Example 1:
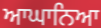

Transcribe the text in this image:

ਆਘਾਨਿਆ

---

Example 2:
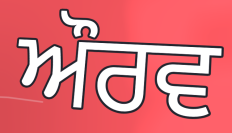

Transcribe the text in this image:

ਔਰਵ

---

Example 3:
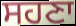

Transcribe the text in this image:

ਸਹਣਾ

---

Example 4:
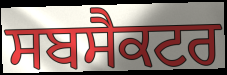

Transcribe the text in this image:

ਸਬਸੈਕਟਰ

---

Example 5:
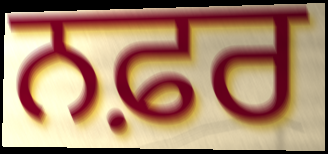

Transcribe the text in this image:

ਨਫ਼ਰ